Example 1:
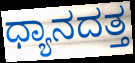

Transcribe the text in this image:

ಧ್ಯಾನದತ್ತ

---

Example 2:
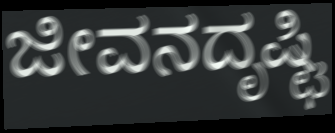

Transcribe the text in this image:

ಜೀವನದೃಷ್ಟಿ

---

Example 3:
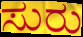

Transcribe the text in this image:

ಸುರು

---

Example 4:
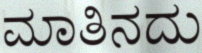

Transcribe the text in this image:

ಮಾತಿನದು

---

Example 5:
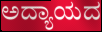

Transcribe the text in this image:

ಅದ್ಯಾಯದ